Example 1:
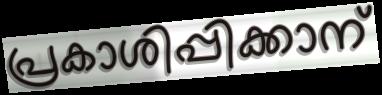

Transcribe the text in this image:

പ്രകാശിപ്പിക്കാന്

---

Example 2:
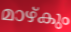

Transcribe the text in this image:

മാഴ്കും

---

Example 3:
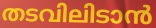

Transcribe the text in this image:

തടവിലിടാൻ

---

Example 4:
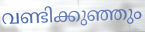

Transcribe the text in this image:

വണ്ടിക്കുഞ്ഞും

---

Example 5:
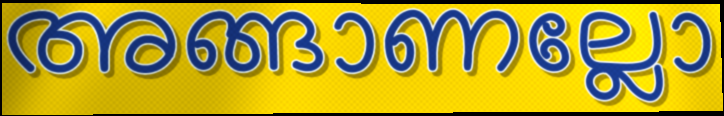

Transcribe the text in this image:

അങ്ങാണല്ലോ